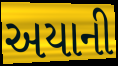
અયાની